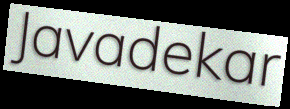
Javadekar